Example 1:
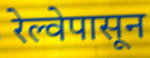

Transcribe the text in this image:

रेल्वेपासून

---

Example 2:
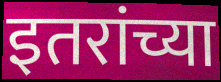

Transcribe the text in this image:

इतरांच्या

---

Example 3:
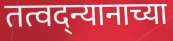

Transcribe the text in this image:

तत्वद्न्यानाच्या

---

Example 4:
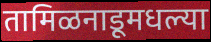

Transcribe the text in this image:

तामिळनाडूमधल्या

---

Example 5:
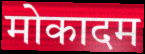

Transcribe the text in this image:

मोकादम